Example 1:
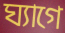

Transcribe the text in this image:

ঘ্যাগে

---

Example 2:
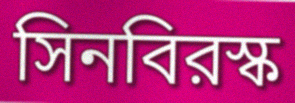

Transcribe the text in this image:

সিনবিরস্ক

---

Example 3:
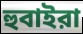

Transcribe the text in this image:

হুবাইরা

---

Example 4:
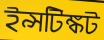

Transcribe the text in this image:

ইন্সটিঙ্কট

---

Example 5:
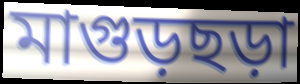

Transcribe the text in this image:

মাগুড়ছড়া